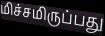
மிச்சமிருப்பது